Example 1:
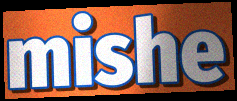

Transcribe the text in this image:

mishe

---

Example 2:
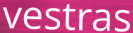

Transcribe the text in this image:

vestras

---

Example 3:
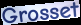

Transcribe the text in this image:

Grosset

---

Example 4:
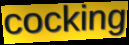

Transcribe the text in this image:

cocking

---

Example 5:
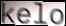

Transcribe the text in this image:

kelo